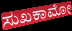
ಸುಖಕಾಮೋ